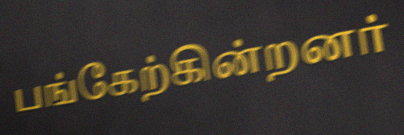
பங்கேற்கின்றனர்